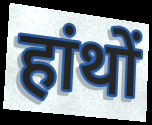
हांथों